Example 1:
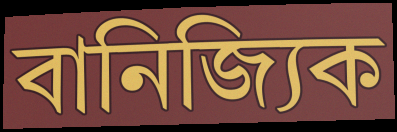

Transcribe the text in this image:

বানিজ্যিক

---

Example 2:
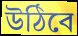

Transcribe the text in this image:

উঠিবে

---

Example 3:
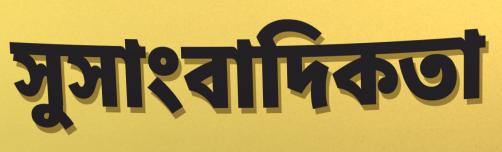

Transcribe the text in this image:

সুসাংবাদিকতা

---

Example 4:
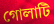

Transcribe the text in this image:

গোলাটি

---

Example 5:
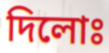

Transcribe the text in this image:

দিলোঃ